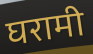
घरामी